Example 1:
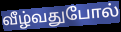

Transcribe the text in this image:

வீழ்வதுபோல்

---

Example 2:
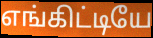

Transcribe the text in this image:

எங்கிட்டியே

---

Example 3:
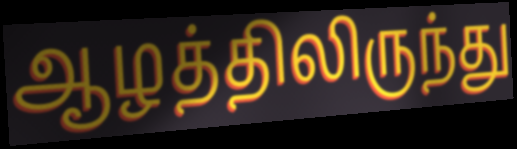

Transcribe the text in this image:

ஆழத்திலிருந்து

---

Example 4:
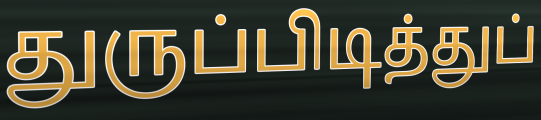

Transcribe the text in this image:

துருப்பிடித்துப்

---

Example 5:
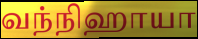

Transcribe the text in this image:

வந்நிஹாயா